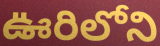
ఊరిలోని